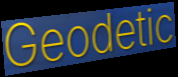
Geodetic